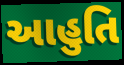
આહુતિ